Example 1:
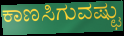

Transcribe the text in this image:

ಕಾಣಸಿಗುವಷ್ಟು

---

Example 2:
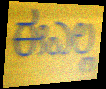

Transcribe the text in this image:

ಈಎಲ್ಲ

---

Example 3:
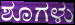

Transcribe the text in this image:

ಶೂಗಳು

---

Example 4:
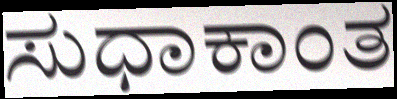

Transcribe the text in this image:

ಸುಧಾಕಾಂತ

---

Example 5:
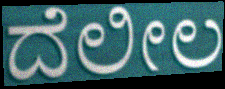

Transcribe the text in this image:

ದೆಲೀಲ